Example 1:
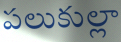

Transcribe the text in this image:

పలుకుల్లా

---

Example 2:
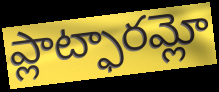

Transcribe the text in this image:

ప్లాట్ఫారమ్లో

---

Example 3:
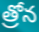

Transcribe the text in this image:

త్రోన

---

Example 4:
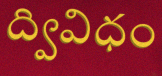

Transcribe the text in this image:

ద్వివిధం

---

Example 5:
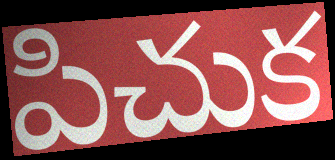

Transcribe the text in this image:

పిచుక